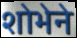
शोभेने